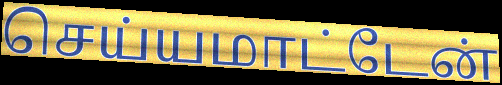
செய்யமாட்டேன்